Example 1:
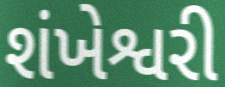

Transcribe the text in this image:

શંખેશ્વરી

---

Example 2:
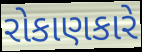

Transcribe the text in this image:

રોકાણકારે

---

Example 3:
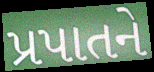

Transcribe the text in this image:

પ્રપાતને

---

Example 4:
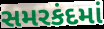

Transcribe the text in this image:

સમરકંદમાં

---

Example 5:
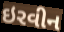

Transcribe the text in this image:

ઇરવીન